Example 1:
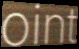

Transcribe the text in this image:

oint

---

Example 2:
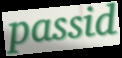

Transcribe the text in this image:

passid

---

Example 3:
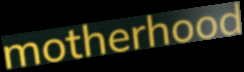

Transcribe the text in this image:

motherhood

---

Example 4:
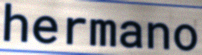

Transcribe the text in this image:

hermano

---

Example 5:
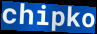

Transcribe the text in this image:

chipko